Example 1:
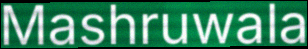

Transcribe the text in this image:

Mashruwala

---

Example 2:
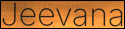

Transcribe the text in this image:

Jeevana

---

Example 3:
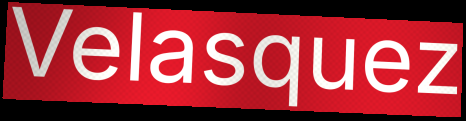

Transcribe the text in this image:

Velasquez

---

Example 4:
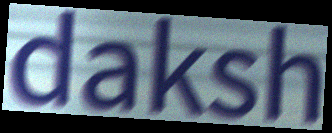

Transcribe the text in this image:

daksh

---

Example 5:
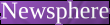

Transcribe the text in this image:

Newsphere